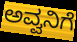
ಅವ್ವನಿಗೆ